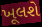
ખૂલશે